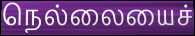
நெல்லையைச்